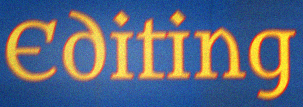
Editing